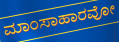
ಮಾಂಸಾಹಾರವೋ